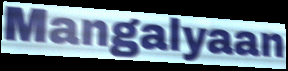
Mangalyaan